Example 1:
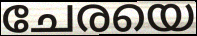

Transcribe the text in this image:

ചേരയെ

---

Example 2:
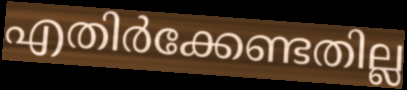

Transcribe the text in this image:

എതിർക്കേണ്ടതില്ല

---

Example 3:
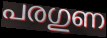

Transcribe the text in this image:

പരഗുണ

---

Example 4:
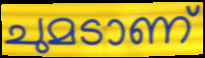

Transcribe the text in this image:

ചുമടാണ്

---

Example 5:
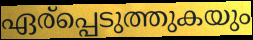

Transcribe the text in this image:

ഏര്പ്പെടുത്തുകയും